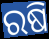
ରଷି